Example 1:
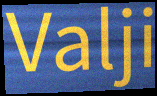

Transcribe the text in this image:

Valji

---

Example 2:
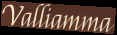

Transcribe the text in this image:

Valliamma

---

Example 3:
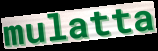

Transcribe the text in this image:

mulatta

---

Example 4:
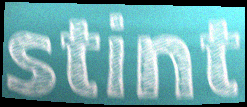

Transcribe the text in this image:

stint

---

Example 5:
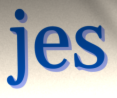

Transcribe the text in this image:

jes